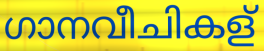
ഗാനവീചികള്